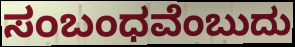
ಸಂಬಂಧವೆಂಬುದು